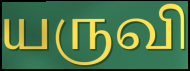
யருவி